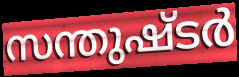
സന്തുഷ്ടർ